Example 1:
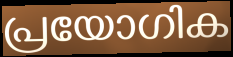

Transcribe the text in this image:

പ്രയോഗിക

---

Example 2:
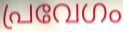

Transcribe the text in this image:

പ്രവേഗം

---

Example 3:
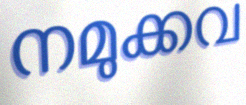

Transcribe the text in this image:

നമുക്കവ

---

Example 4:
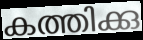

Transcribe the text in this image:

കത്തിക്കു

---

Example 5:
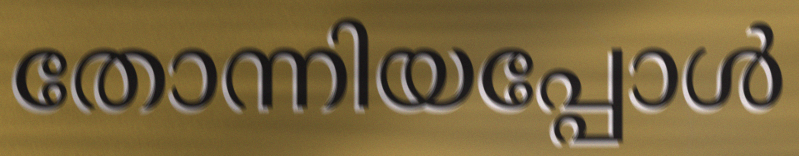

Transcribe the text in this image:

തോന്നിയപ്പോൾ